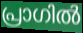
പ്രാഗിൽ